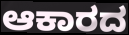
ಆಕಾರದ